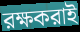
রক্ষকরাই